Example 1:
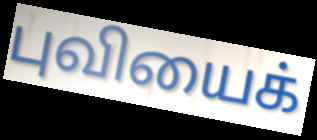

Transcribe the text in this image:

புவியைக்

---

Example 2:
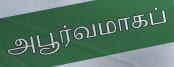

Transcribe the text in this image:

அபூர்வமாகப்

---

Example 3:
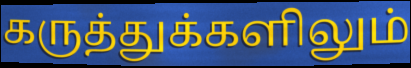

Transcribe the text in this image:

கருத்துக்களிலும்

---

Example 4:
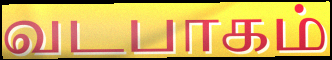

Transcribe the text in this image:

வடபாகம்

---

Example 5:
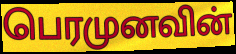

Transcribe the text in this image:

பெரமுனவின்